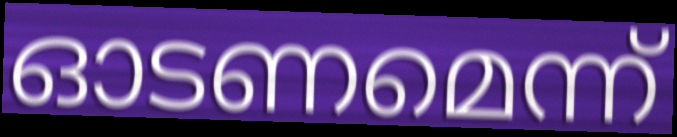
ഓടണമെന്ന്